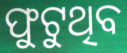
ଫୁଟୁଥିବ